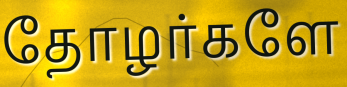
தோழர்களே